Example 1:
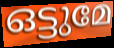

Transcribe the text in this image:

ഒട്ടുമേ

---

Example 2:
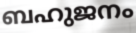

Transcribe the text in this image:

ബഹുജനം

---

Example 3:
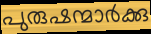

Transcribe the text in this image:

പുരുഷന്മാർക്കു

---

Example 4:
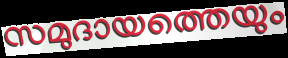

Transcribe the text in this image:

സമുദായത്തെയും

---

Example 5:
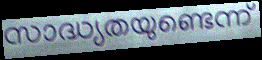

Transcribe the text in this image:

സാദ്ധ്യതയുണ്ടെന്ന്